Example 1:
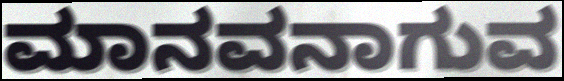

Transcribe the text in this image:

ಮಾನವನಾಗುವ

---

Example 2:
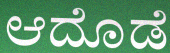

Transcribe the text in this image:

ಆದೊಡೆ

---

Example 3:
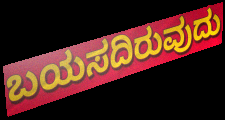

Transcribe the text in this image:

ಬಯಸದಿರುವುದು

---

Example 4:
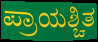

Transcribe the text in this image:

ಪ್ರಾಯಶ್ಚಿತ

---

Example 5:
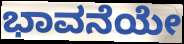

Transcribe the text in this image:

ಭಾವನೆಯೇ